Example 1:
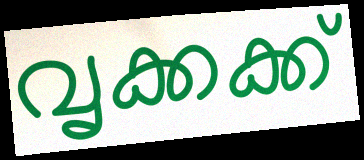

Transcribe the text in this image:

വൃക്കക്ക്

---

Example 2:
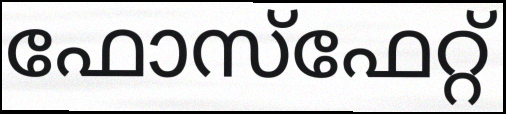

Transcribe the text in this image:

ഫോസ്ഫേറ്റ്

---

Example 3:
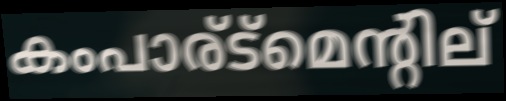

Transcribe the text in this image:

കംപാര്ട്മെന്റില്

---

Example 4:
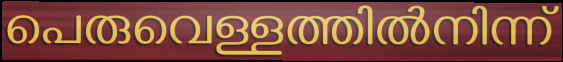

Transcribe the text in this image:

പെരുവെള്ളത്തിൽനിന്ന്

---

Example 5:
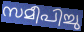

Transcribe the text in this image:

സമീപിച്ചു